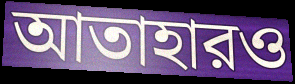
আতাহারও